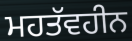
ਮਹਤੱਵਹੀਨ